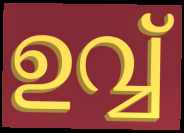
ഉവ്വ്